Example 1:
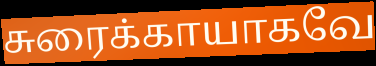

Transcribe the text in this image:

சுரைக்காயாகவே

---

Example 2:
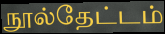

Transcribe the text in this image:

நூல்தேட்டம்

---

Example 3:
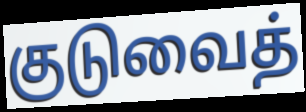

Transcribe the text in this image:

குடுவைத்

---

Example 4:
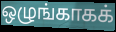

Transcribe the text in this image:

ஒழுங்காகக்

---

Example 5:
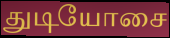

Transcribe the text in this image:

துடியோசை